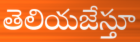
తెలియజేస్తూ